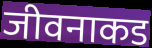
जीवनाकड